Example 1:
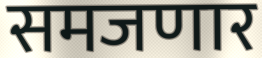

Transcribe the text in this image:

समजणार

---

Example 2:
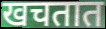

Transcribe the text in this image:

खचतात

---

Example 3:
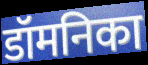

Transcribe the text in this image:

डॉमनिका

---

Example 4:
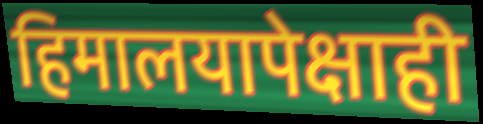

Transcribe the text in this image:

हिमालयापेक्षाही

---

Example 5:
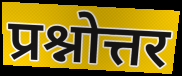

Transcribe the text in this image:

प्रश्नोत्तर